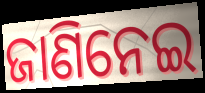
ଜାଣିନେଇ